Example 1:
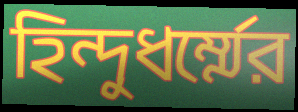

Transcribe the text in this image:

হিন্দুধর্ম্মের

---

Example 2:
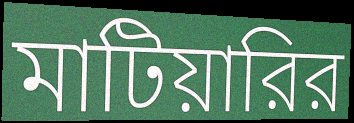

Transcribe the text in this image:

মাটিয়ারির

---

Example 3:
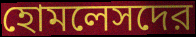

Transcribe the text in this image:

হোমলেসদের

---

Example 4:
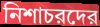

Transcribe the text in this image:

নিশাচরদের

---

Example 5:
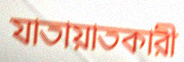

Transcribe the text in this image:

যাতায়াতকারী